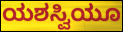
ಯಶಸ್ವಿಯೂ